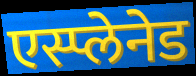
एस्प्लेनेड